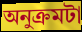
অনুক্রমটা